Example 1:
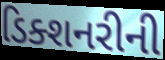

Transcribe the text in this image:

ડિક્શનરીની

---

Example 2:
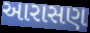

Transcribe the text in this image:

આરાસણ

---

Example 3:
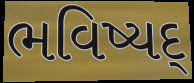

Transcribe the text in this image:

ભવિષ્યદ્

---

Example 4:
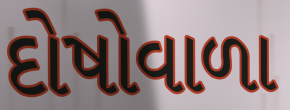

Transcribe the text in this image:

દોષોવાળા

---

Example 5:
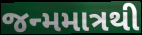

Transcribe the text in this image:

જન્મમાત્રથી